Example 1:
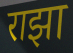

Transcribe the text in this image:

राझा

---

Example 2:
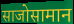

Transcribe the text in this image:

साजोसामान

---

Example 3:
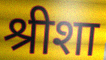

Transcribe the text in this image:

श्रीशा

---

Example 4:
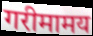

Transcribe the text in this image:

गरीमामय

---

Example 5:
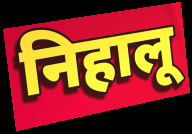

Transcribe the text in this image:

निहालू